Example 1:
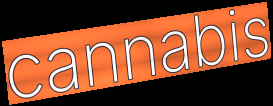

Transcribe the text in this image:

cannabis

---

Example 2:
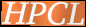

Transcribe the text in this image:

HPCL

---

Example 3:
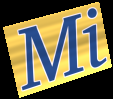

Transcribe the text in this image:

Mi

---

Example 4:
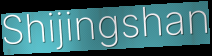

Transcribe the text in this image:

Shijingshan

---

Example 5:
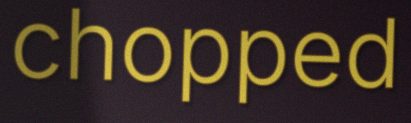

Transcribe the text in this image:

chopped